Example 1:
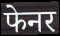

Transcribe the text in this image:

फेनर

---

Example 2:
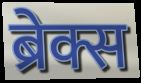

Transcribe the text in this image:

ब्रेक्स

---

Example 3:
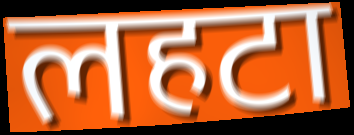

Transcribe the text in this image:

लहटा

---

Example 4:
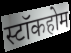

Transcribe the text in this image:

स्टॉकहोम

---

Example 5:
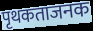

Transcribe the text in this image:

पृथकताजनक